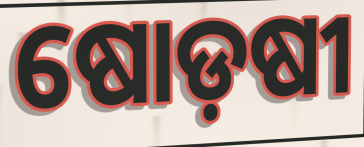
ଷୋଡ଼ଷୀ